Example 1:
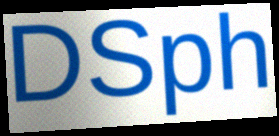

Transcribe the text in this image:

DSph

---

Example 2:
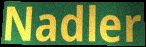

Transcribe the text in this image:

Nadler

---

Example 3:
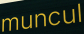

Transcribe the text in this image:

muncul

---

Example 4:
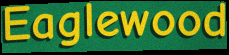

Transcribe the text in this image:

Eaglewood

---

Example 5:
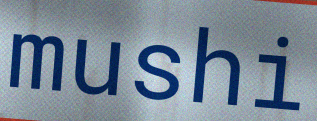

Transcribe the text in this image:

mushi